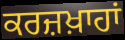
ਕਰਜ਼ਖ਼ਾਹਾਂ